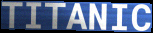
TITANIC